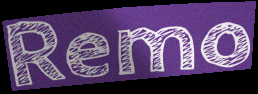
Remo